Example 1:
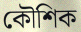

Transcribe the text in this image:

কৌশিক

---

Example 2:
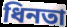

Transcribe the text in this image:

ধিনতা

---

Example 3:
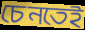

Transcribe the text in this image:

চেনতেই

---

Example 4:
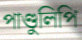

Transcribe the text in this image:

পাণ্ডুলিপি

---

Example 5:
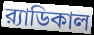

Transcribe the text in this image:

র‍্যাডিকাল